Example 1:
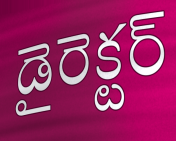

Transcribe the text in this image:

డైరెక్టర్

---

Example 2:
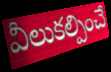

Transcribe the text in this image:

వీలుకల్పించే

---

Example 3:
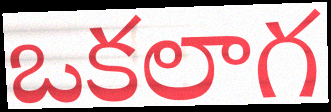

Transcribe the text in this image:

ఒకలాగ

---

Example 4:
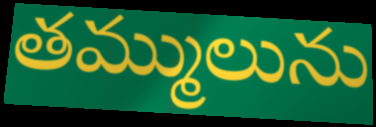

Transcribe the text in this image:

తమ్ములును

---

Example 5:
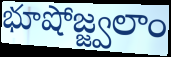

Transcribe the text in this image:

భూషోజ్జ్వలాం